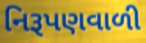
નિરૂપણવાળી